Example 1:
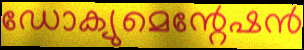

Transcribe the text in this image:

ഡോക്യുമെന്റേഷൻ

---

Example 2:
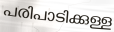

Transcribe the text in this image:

പരിപാടിക്കുള്ള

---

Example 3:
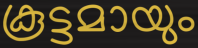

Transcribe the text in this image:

കൂട്ടമായും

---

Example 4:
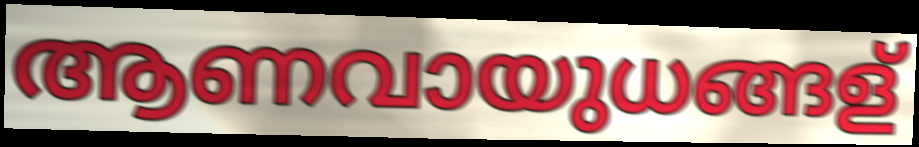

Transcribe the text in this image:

ആണവായുധങ്ങള്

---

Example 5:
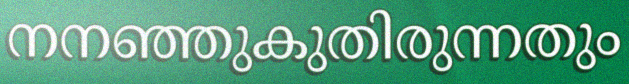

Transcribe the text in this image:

നനഞ്ഞുകുതിരുന്നതും